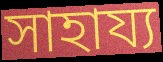
সাহায্য